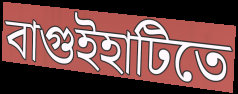
বাগুইহাটিতে